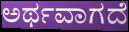
ಅರ್ಥವಾಗದೆ